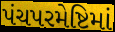
પંચપરમેષ્ટિમાં